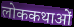
लोककथाओं